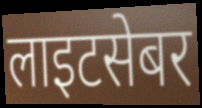
लाइटसेबर